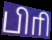
பிரி